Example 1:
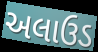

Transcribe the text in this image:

અલાઉડ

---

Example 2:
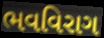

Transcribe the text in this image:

ભવવિરાગ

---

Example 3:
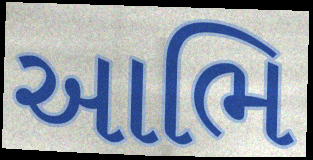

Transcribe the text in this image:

આભિ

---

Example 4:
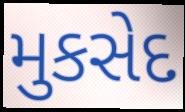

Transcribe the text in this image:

મુકસેદ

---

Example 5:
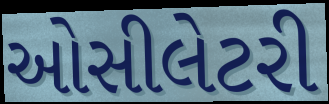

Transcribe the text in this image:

ઓસીલેટરી